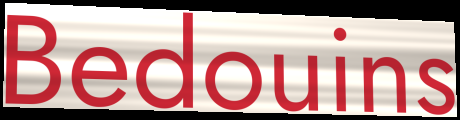
Bedouins